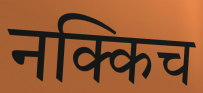
नक्किच